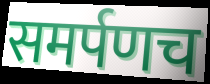
समर्पणच